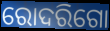
ରୋଦରିଗୋ